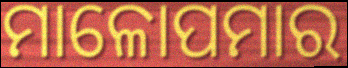
ମାଳୋପମାର